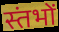
स्तंभों